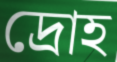
দ্রোহ